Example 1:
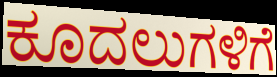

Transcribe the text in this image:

ಕೂದಲುಗಳಿಗೆ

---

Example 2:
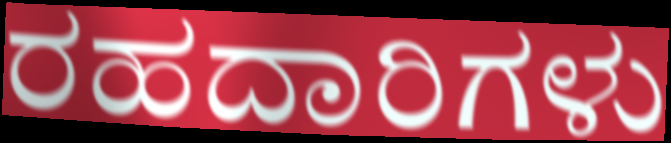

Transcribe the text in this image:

ರಹದಾರಿಗಳು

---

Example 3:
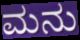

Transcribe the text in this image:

ಮನು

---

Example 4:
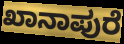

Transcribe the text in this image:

ಖಾನಾಪುರೆ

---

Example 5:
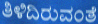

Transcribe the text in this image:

ತಿಳಿದಿರುವಂತೆ